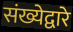
संख्येद्वारे